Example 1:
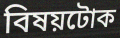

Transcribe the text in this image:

বিষয়টোক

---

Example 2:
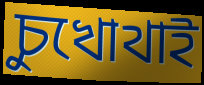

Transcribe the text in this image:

চুখোথাই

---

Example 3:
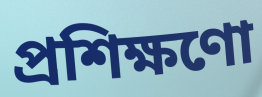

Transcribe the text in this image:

প্ৰশিক্ষণো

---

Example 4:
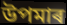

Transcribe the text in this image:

উপমাৰ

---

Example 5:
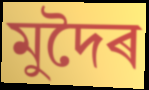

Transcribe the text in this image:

মুদৈৰ